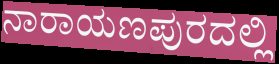
ನಾರಾಯಣಪುರದಲ್ಲಿ